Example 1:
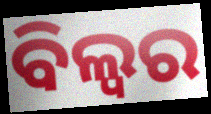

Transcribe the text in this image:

ବିଲ୍ୱର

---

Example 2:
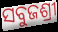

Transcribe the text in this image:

ସବୁଜଶ୍ରୀ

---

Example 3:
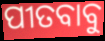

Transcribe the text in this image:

ପୀତବାବୁ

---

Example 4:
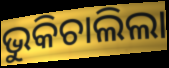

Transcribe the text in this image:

ଭୁକିଚାଲିଲା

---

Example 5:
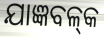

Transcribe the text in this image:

ଯାଜ୍ଞବଳ୍‌କ